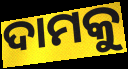
ଦାମକୁ